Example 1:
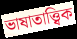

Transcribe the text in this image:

ভাষাতাত্ত্বিক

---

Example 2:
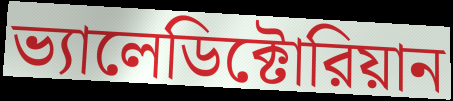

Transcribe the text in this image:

ভ্যালেডিক্টোরিয়ান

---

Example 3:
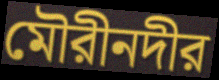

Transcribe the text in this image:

মৌরীনদীর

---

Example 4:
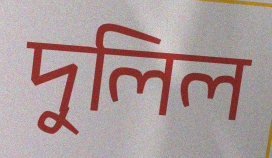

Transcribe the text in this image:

দুলিল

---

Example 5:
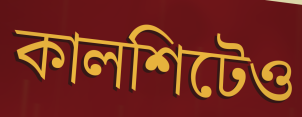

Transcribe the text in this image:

কালশিটেও